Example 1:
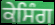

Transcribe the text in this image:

ਕੇਸਿੰਗ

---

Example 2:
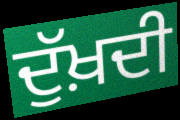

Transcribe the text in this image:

ਦੁੱਖ਼ਦੀ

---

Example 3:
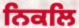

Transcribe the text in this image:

ਨਿਕਲਿ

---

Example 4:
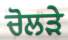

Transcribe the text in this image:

ਚੋਲੜੇ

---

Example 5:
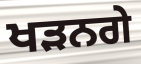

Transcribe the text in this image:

ਖੜਨਗੇ